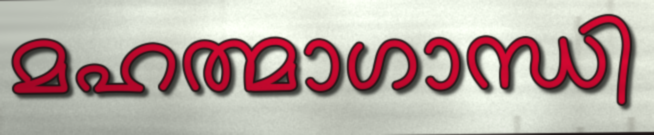
മഹത്മാഗാന്ധി